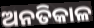
ଅନତିକାଳ